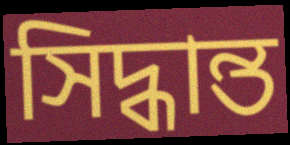
সিদ্ধান্ত